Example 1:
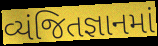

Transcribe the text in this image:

વ્યંજિતજ્ઞાનમાં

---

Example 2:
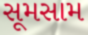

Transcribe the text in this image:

સૂમસામ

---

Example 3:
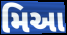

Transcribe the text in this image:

મિઆ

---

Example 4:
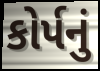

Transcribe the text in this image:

કોર્પનું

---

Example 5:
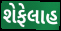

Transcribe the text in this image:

શેફેલાહ